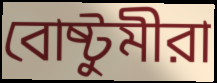
বোষ্টুমীরা